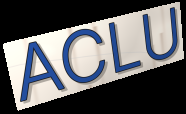
ACLU